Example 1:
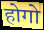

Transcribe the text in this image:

होगो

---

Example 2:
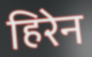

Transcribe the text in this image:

हिरेन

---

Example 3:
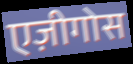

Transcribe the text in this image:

एज़ीगोस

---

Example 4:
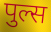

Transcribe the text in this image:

पुल्स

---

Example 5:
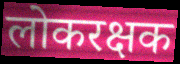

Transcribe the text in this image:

लोकरक्षक